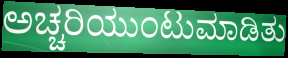
ಅಚ್ಚರಿಯುಂಟುಮಾಡಿತು